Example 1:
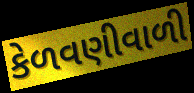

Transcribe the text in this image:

કેળવણીવાળી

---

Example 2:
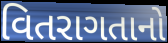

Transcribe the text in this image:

વિતરાગતાનો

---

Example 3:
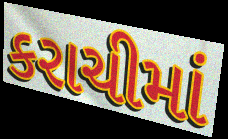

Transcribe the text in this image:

કરાચીમાં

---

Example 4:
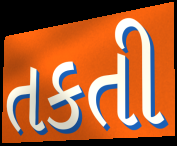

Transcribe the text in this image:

તકતી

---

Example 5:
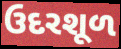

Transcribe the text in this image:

ઉદરશૂળ